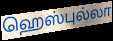
ஹெஸ்புல்லா